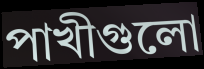
পাখীগুলো